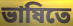
ভাষিতে